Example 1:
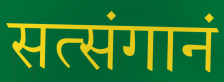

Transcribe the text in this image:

सत्संगानं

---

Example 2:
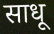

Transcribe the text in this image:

साधू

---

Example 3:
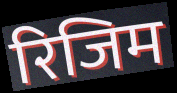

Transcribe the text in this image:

रिजिम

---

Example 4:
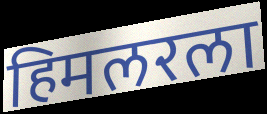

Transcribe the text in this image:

हिमलरला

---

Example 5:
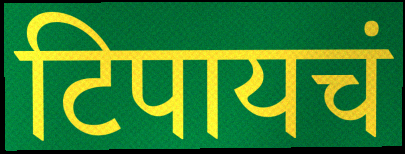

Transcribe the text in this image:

टिपायचं